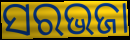
ସରଭଜା